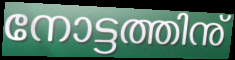
നോട്ടത്തിനു്